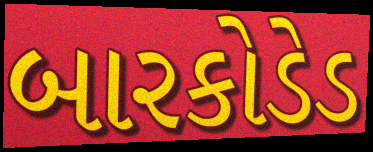
બારકોડેડ